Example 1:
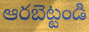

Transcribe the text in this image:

ఆరబెట్టండి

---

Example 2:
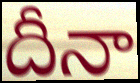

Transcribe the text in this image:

దీనా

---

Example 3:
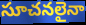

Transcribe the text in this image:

సూచనలైనా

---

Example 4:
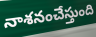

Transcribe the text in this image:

నాశనంచేస్తుంది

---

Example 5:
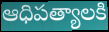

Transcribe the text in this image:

ఆధిపత్యాలకి